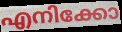
എനിക്കോ